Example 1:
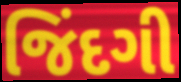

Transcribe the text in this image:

જિંદગી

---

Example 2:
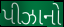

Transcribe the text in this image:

પીઝાનો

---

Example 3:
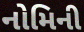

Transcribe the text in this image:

નોમિની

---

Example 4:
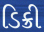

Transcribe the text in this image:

ડિક્રી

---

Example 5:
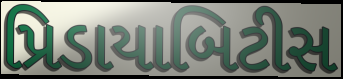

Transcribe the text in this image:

પ્રિડાયાબિટીસ